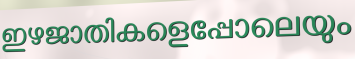
ഇഴജാതികളെപ്പോലെയും